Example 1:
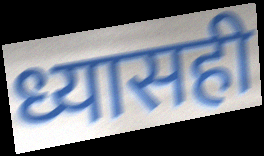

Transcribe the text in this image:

ध्यासही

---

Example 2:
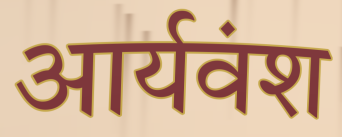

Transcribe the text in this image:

आर्यवंश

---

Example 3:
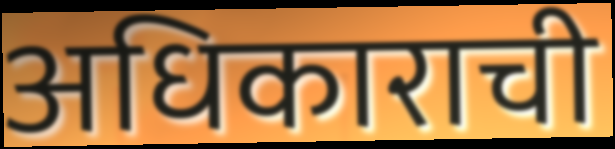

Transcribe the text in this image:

अधिकाराची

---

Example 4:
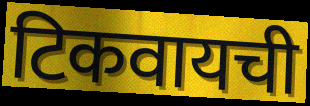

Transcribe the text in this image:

टिकवायची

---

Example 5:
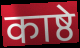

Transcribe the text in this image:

काष्ठे